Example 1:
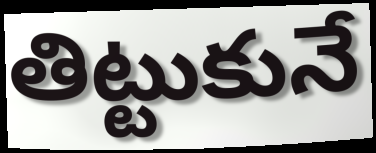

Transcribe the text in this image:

తిట్టుకునే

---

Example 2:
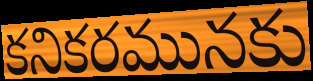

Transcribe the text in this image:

కనికరమునకు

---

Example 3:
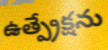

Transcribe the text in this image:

ఉత్ప్రేక్షను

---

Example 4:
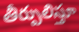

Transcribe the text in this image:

తీర్పులిస్తూ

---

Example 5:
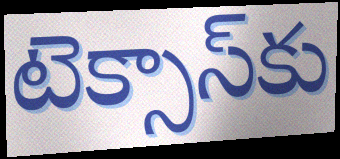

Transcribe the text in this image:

టెక్సాస్‌కు